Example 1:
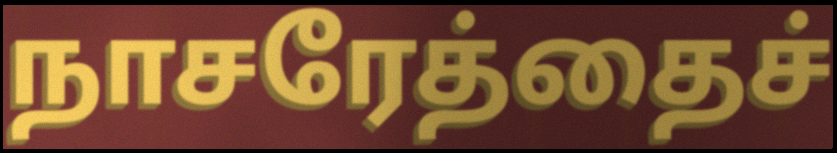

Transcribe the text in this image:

நாசரேத்தைச்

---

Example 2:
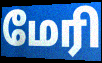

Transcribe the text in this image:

மேரி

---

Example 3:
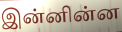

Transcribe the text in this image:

இன்னின்ன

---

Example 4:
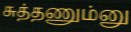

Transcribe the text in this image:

சுத்தணும்னு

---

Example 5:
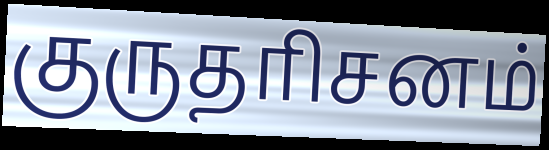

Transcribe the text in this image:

குருதரிசனம்